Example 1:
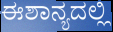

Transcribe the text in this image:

ಈಶಾನ್ಯದಲ್ಲಿ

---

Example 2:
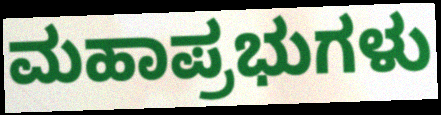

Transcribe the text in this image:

ಮಹಾಪ್ರಭುಗಳು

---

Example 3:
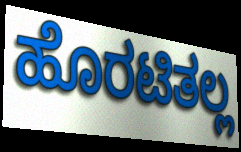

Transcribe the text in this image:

ಹೊರಟಿತಲ್ಲ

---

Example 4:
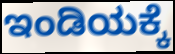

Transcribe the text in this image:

ಇಂಡಿಯಕ್ಕೆ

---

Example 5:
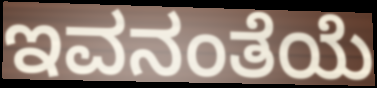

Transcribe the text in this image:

ಇವನಂತೆಯೆ